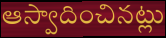
ఆస్వాదించినట్లు